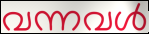
വന്നവൾ